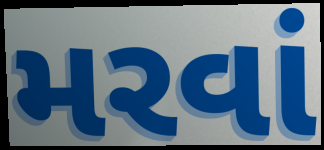
મરવાં